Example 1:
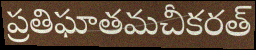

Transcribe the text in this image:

ప్రతిఘాతమచీకరత్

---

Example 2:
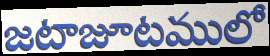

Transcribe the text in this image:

జటాజూటములో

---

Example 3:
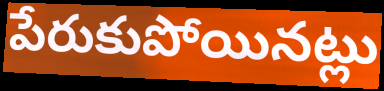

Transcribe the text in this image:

పేరుకుపోయినట్లు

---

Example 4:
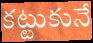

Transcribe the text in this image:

కట్టుకునే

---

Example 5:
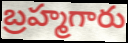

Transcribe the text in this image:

బ్రహ్మగారు